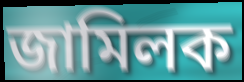
জামিলক